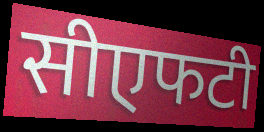
सीएफटी